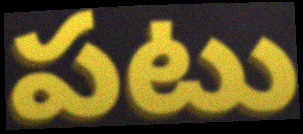
పటు